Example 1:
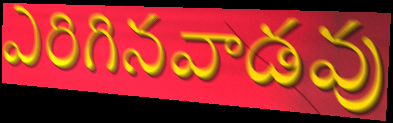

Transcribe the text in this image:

ఎరిగినవాడవు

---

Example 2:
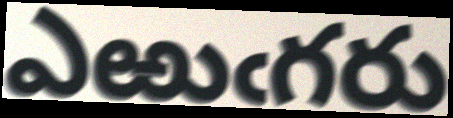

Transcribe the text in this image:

ఎఱుఁగరు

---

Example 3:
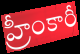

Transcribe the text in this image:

హ్రీంకారీ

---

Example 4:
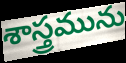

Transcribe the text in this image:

శాస్త్రమును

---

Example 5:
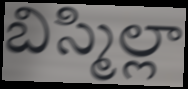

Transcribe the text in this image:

బిస్మిల్లా